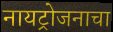
नायट्रोजनाचा